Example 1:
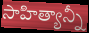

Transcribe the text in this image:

సాహిత్యాన్నీ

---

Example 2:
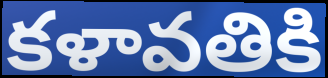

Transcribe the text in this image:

కళావతికి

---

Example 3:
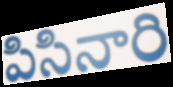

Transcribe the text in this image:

పిసినారి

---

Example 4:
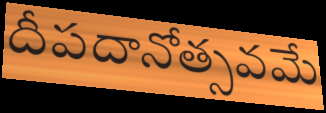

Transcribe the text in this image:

దీపదానోత్సవమే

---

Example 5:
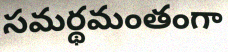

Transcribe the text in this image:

సమర్థమంతంగా